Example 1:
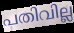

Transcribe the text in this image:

പതിവില്ല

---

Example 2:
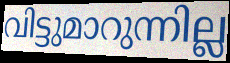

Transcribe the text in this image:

വിട്ടുമാറുന്നില്ല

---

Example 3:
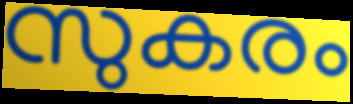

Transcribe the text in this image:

സുകരം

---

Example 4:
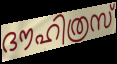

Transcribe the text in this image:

ദൗഹിത്രസ്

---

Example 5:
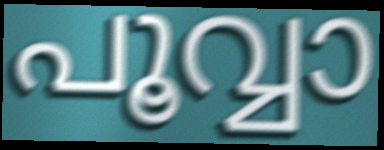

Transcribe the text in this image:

പൂവ്വാ